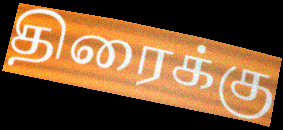
திரைக்கு